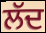
ਲੱਦ